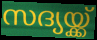
സദ്യയ്ക്ക്